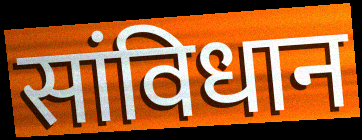
सांविधान